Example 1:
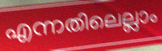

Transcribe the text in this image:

എന്നതിലെല്ലാം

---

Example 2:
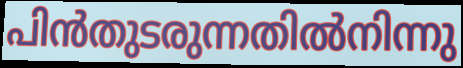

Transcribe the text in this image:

പിൻതുടരുന്നതിൽനിന്നു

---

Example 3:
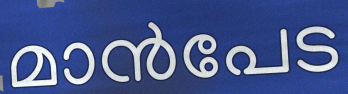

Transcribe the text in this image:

മാൻപേട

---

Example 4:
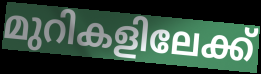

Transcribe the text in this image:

മുറികളിലേക്ക്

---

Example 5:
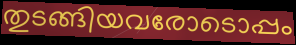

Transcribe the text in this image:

തുടങ്ങിയവരോടൊപ്പം